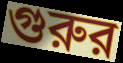
গুরুর